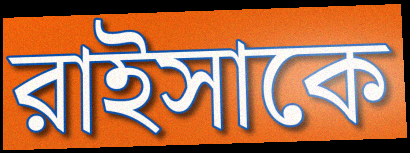
রাইসাকে